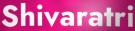
Shivaratri